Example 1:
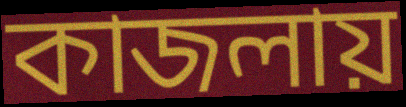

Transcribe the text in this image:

কাজলায়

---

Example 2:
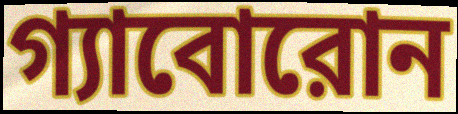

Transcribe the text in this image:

গ্যাবোরোন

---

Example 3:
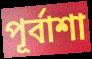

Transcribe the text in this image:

পূর্বাশা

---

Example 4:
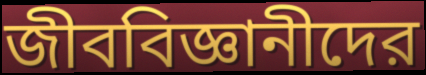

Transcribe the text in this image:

জীববিজ্ঞানীদের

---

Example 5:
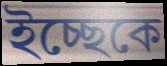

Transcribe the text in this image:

ইচ্ছেকে